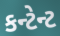
કન્ટેન્ટ